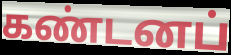
கண்டனப்